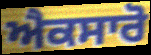
ਐਕਸਾਰੋ